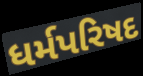
ધર્મપરિષદ